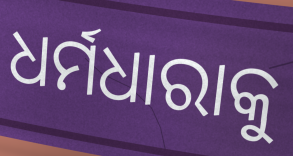
ଧର୍ମଧାରାକୁ